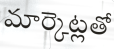
మార్కెట్లతో